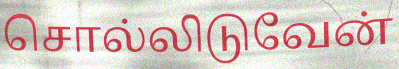
சொல்லிடுவேன்